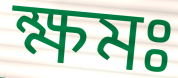
ক্ষমঃ